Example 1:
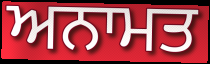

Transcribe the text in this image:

ਅਨਾਮਤ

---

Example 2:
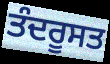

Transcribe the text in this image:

ਤੰਦਰੂਸਤ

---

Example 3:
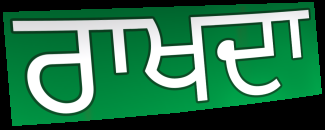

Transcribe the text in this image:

ਰਾਖਦਾ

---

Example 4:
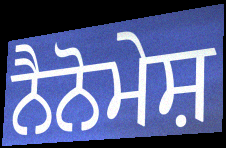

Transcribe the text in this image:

ਨੈਨੋਮੇਸ਼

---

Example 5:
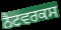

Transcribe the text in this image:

ਨੈਟਵਰਕਸ